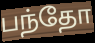
பந்தோ